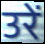
उरें